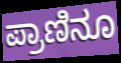
ಪ್ರಾಣಿನೂ